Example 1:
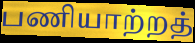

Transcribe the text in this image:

பணியாற்றத்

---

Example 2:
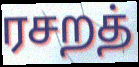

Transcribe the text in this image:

ரசறத்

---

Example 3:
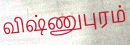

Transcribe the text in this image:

விஷ்ணுபுரம்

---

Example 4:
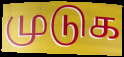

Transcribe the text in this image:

முடுக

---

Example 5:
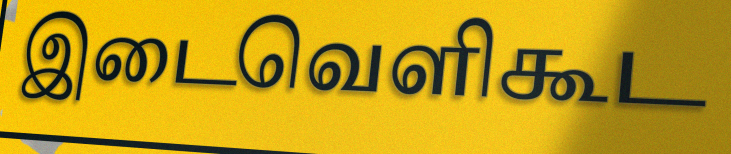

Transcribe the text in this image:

இடைவெளிகூட